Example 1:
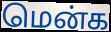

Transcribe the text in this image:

மென்க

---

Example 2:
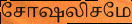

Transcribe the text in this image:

சோஷலிசமே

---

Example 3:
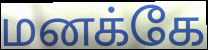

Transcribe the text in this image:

மனக்கே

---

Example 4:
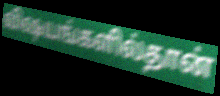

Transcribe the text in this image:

விஷயங்களில்தான்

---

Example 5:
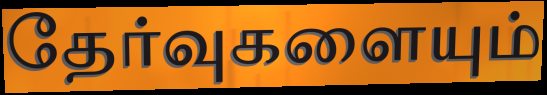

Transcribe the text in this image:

தேர்வுகளையும்